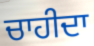
ਚਾਹੀਦਾ